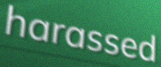
harassed